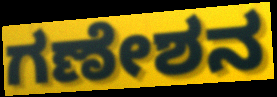
ಗಣೇಶನ